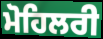
ਮੋਹਿਲਰੀ